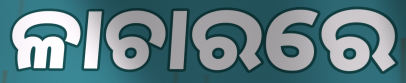
ଳାଚାରରେ